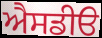
ਐਸਡੀੳ